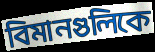
বিমানগুলিকে